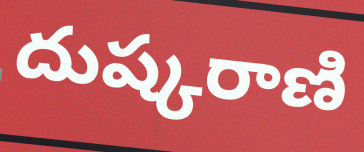
దుష్కరాణి